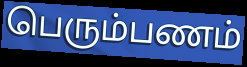
பெரும்பணம்